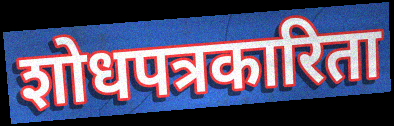
शोधपत्रकारिता